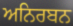
ਅਨਿਰਬਨ